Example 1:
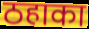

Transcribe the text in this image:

ठहाका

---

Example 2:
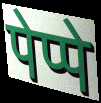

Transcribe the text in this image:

पेप्पे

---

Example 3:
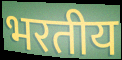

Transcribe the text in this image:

भरतीय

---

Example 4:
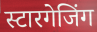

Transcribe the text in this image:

स्टारगेजिंग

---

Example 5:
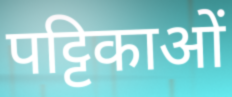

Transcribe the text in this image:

पट्टिकाओं